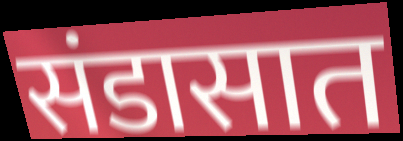
संडासात